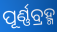
ପୂର୍ଣ୍ଣବ୍ରହ୍ମ